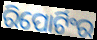
ରିପୋର୍ଟିଂର